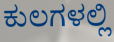
ಕುಲಗಳಲ್ಲಿ